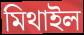
মিথাইল